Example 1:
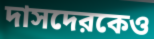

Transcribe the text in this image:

দাসদেরকেও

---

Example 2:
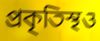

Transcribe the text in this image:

প্রকৃতিস্থও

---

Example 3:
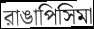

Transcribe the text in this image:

রাঙাপিসিমা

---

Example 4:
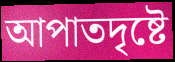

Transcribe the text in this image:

আপাতদৃষ্টে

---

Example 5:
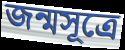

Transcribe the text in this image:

জন্মসূত্রে